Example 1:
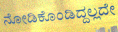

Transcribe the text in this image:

ನೋಡಿಕೊಂಡಿದ್ದಲ್ಲದೇ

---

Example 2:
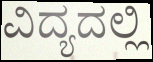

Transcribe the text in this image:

ವಿದ್ಯದಲ್ಲಿ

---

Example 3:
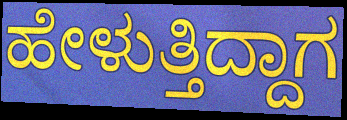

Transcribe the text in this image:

ಹೇಳುತ್ತಿದ್ದಾಗ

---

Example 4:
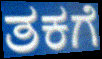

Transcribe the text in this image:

ತಕಗೆ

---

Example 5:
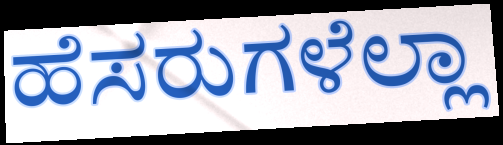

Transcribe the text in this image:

ಹೆಸರುಗಳೆಲ್ಲಾ